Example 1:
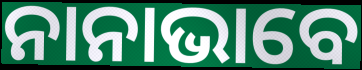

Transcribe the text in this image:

ନାନାଭାବେ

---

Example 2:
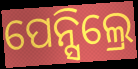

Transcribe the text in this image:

ପେନ୍ସିଲ୍ରେ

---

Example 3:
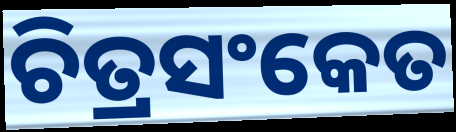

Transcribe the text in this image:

ଚିତ୍ରସଂକେତ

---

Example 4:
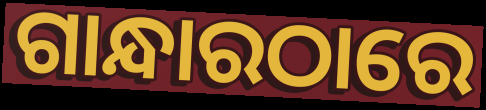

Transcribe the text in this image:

ଗାନ୍ଧାରଠାରେ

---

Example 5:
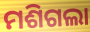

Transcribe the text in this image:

ମଶିଗଲା